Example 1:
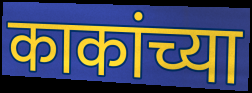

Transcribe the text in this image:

काकांच्या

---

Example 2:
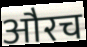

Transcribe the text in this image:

औरच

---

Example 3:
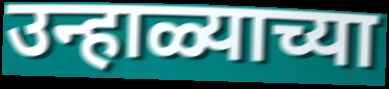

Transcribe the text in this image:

उन्हाळ्याच्या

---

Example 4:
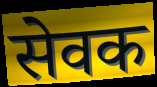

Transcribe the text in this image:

सेवक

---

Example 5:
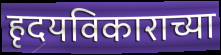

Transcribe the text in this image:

हृदयविकाराच्या